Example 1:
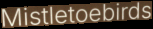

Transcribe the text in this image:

Mistletoebirds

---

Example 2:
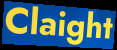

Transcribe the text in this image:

Claight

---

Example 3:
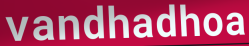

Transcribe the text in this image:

vandhadhoa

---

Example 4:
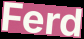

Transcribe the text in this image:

Ferd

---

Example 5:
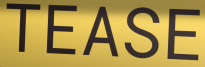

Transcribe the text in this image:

TEASE